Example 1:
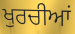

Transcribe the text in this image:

ਖੁਰਚੀਆਂ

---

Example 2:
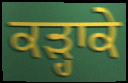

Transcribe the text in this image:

ਕੜ੍ਹਾਕੇ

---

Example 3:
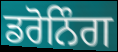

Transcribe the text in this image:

ਡਰੋਨਿੰਗ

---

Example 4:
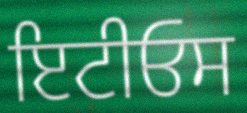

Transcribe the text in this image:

ਇਟੀਓਸ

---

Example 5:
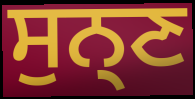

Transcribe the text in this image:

ਸੁਨ੍ਣ